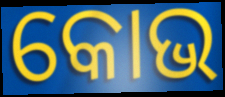
କୋଭ